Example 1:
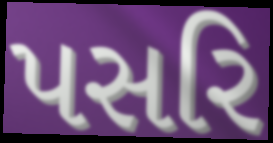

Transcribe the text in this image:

પસરિ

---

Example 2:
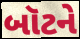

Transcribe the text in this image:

બૉટને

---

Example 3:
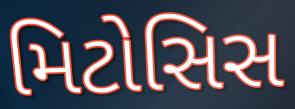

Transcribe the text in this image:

મિટોસિસ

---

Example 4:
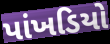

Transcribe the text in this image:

પાંખડિયો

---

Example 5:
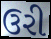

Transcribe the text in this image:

ઉરી